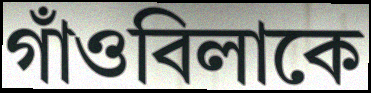
গাঁওবিলাকে